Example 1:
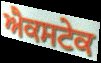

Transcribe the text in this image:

ਐਕਸਟੇਕ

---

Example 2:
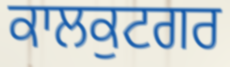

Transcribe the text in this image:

ਕਾਲਕੁਟਗਰ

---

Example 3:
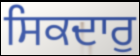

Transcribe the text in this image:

ਸਿਕਦਾਰੁ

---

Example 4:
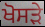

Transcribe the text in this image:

ਖੋਸੜੇ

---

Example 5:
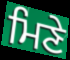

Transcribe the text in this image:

ਮਿਣੇ